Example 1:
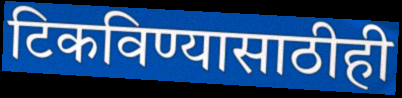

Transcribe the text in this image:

टिकविण्यासाठीही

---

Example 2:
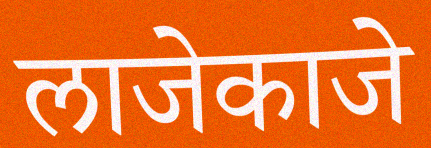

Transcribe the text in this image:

लाजेकाजे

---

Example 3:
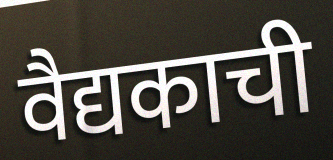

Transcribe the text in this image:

वैद्यकाची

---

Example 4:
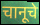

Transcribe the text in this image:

चानूचे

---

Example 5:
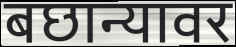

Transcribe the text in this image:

बछान्यावर